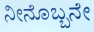
ನೀನೊಬ್ಬನೇ